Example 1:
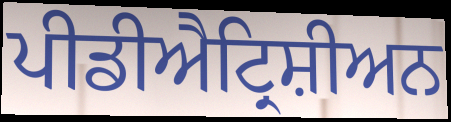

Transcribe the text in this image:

ਪੀਡੀਐਟ੍ਰਿਸ਼ੀਅਨ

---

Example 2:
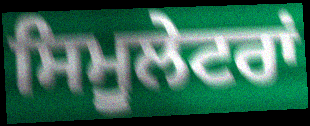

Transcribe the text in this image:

ਸਿਮੂਲੇਟਰਾਂ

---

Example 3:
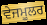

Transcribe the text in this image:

ਵੇਜਮੂਲਰ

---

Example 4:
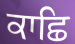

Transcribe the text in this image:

ਕਾਛਿ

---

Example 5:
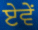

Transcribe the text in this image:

ਏਵੇਂ